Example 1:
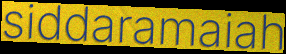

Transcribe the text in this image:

siddaramaiah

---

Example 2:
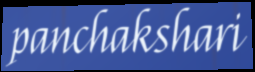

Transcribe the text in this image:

panchakshari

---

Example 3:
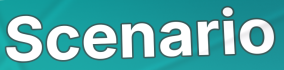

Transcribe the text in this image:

Scenario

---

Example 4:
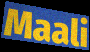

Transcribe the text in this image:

Maali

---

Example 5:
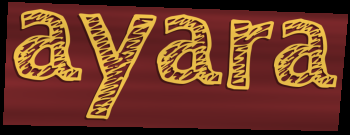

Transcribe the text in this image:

ayara